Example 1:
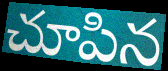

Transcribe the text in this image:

చూపిన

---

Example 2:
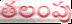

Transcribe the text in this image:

తలంపు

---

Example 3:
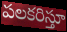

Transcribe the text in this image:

పలకరిస్తూ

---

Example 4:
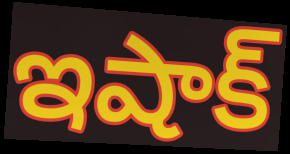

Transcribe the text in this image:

ఇషాక్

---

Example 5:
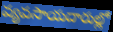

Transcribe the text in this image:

వ్యవసాయదారుల్లో